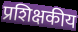
प्रशिक्षकीय